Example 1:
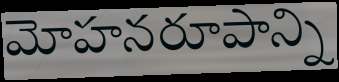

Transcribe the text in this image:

మోహనరూపాన్ని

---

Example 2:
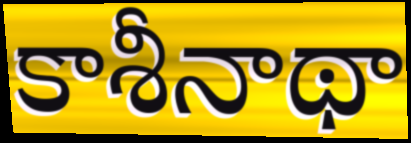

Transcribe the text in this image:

కాశీనాథా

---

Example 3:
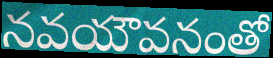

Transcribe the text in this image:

నవయౌవనంతో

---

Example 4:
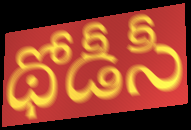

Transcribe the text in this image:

థోడీసీ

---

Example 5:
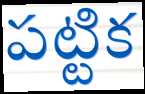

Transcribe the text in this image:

పట్టిక